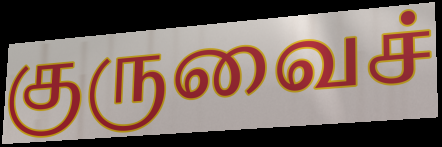
குருவைச்